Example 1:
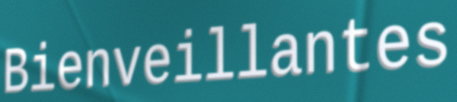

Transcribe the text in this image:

Bienveillantes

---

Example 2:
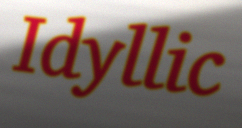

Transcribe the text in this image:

Idyllic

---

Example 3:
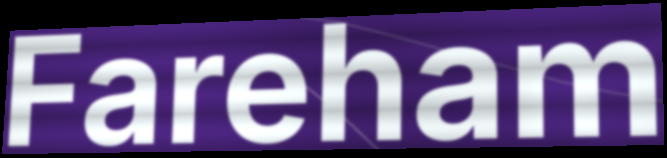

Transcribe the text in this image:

Fareham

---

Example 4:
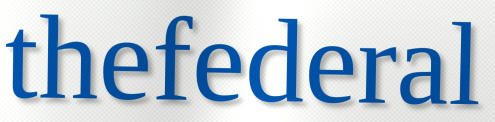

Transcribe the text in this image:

thefederal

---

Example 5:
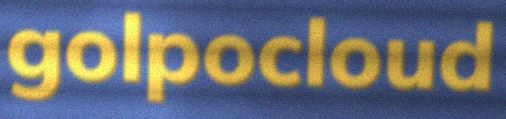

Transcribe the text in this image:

golpocloud